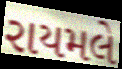
રાયમલે